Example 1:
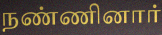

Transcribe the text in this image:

நண்ணினார்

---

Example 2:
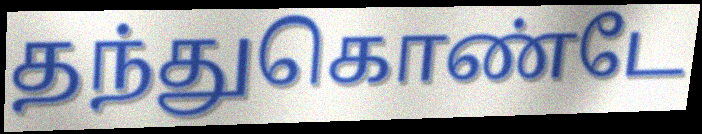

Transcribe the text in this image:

தந்துகொண்டே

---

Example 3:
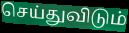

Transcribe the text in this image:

செய்துவிடும்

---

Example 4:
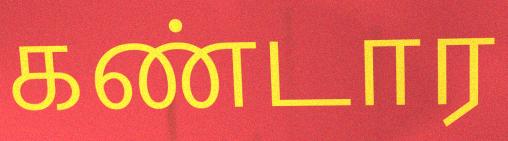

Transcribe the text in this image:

கண்டார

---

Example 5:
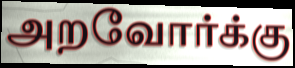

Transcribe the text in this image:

அறவோர்க்கு